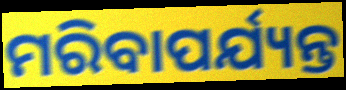
ମରିବାପର୍ଯ୍ୟନ୍ତ